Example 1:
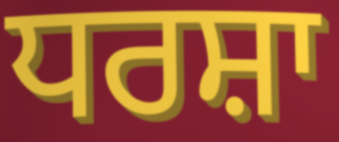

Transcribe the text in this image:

ਧਰਸ਼ਾ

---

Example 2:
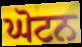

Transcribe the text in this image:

ਘੋਟਨ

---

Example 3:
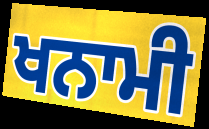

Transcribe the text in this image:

ਖਨਾਮੀ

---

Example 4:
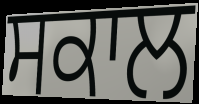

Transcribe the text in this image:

ਸਕਾਲ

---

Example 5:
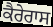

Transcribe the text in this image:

ਕੈਰੇਰਾਸ